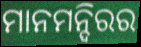
ମାନମନ୍ଦିରର